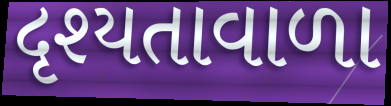
દૃશ્યતાવાળા